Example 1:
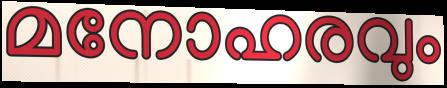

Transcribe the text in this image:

മനോഹരവും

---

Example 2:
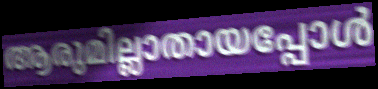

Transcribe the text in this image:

ആരുമില്ലാതായപ്പോൾ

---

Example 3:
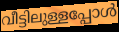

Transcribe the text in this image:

വീട്ടിലുള്ളപ്പോൾ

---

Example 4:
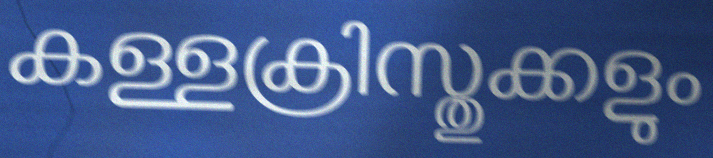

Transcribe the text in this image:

കള്ളക്രിസ്തുക്കളും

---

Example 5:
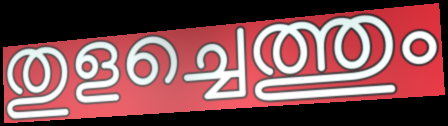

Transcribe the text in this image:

തുളച്ചെത്തും